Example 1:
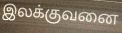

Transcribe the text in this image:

இலக்குவனை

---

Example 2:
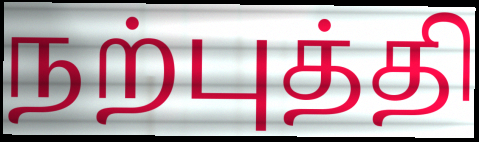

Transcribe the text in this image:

நற்புத்தி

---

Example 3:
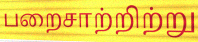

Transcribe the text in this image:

பறைசாற்றிற்று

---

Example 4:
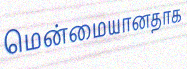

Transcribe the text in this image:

மென்மையானதாக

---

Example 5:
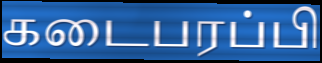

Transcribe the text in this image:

கடைபரப்பி